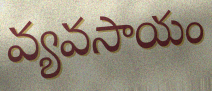
వ్యవసాయం